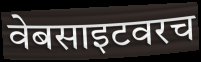
वेबसाइटवरच